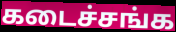
கடைச்சங்க